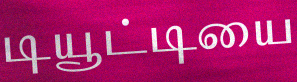
டியூட்டியை